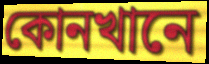
কোনখানে